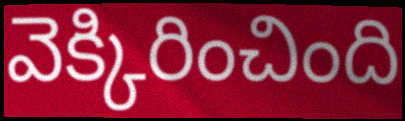
వెక్కిరించింది